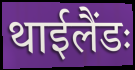
थाईलैंडः